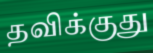
தவிக்குது